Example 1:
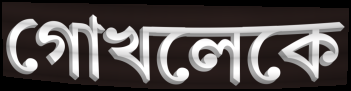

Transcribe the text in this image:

গোখলেকে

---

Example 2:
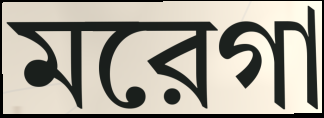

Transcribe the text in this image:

মরেগা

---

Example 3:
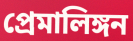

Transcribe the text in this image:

প্রেমালিঙ্গন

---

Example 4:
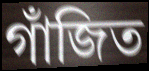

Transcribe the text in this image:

গাঁজিত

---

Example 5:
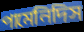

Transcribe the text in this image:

পার্মেনিদিস